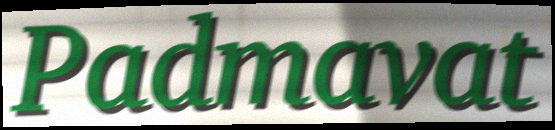
Padmavat